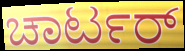
ಚಾರ್ಟರ್